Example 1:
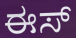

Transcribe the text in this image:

ಈಸ್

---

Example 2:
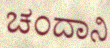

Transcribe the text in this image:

ಚಂದಾನಿ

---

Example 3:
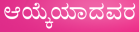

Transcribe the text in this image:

ಆಯ್ಕೆಯಾದವರ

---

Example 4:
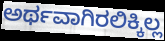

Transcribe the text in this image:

ಅರ್ಥವಾಗಿರಲಿಕ್ಕಿಲ್ಲ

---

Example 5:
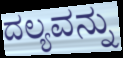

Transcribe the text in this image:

ದಲ್ಯವನ್ನು